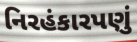
નિરહંકારપણું